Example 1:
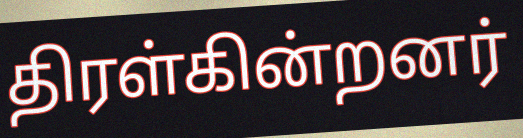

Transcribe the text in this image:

திரள்கின்றனர்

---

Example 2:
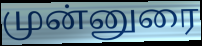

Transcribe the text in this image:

முன்னுரை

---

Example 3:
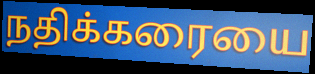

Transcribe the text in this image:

நதிக்கரையை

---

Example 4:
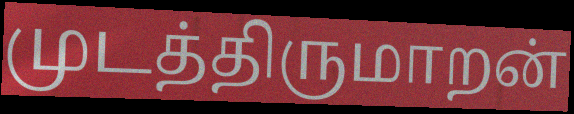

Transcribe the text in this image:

முடத்திருமாறன்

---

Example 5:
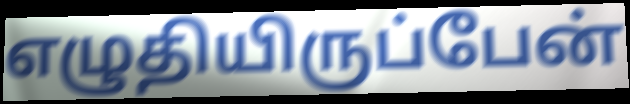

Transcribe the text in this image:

எழுதியிருப்பேன்